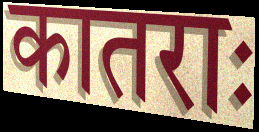
कातराः